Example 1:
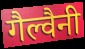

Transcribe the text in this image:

गैल्वैनी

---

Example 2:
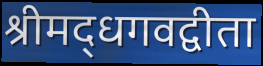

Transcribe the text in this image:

श्रीमद्धगवद्वीता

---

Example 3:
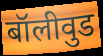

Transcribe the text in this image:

बॉलीवुड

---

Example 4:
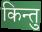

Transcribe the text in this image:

किन्तु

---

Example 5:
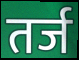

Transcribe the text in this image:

तर्ज